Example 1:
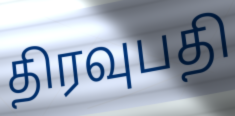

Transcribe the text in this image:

திரவுபதி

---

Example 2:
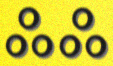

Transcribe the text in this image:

ஃஃ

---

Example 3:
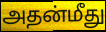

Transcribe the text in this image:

அதன்மீது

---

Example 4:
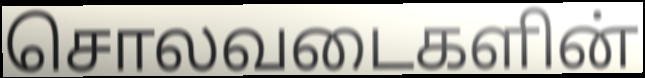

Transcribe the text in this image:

சொலவடைகளின்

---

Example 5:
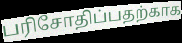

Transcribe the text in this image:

பரிசோதிப்பதற்காக